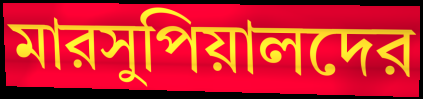
মারসুপিয়ালদের